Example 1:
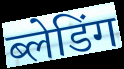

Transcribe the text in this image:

ब्लेडिंग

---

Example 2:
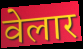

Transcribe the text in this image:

वेलार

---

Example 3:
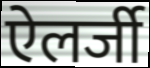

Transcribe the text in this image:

ऐलर्जी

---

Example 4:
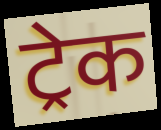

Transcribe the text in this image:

ट्रेक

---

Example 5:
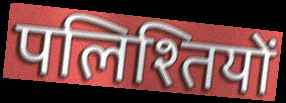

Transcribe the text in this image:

पलिश्तियों